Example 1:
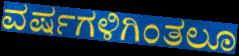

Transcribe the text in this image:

ವರ್ಷಗಳಿಗಿಂತಲೂ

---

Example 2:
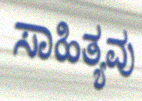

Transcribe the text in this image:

ಸಾಹಿತ್ಯವು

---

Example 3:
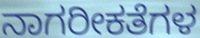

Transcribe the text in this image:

ನಾಗರೀಕತೆಗಳ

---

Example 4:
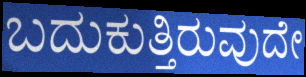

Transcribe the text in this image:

ಬದುಕುತ್ತಿರುವುದೇ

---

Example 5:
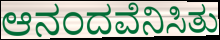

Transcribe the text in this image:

ಆನಂದವೆನಿಸಿತು